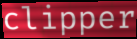
clipper